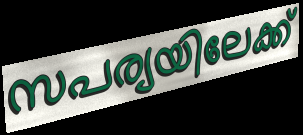
സപര്യയിലേക്ക്